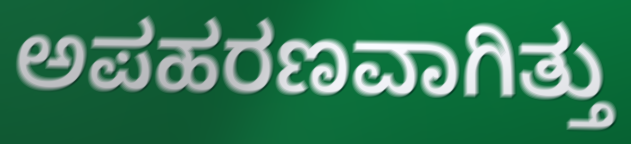
ಅಪಹರಣವಾಗಿತ್ತು